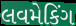
લવમેકિંગ